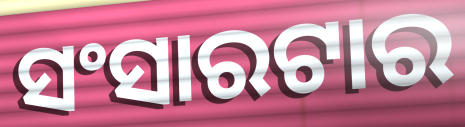
ସଂସାରଟାର